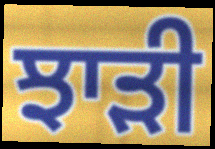
ਝਾੜੀ